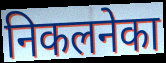
निकलनेका